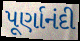
પૂર્ણાનંદી